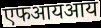
एफआयआय